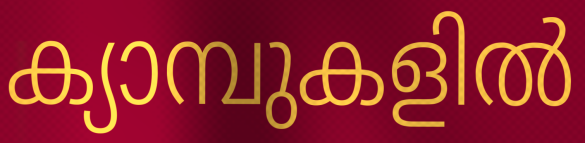
ക്യാമ്പുകളിൽ